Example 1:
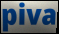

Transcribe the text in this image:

piva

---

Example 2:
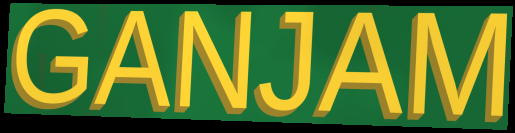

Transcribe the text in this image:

GANJAM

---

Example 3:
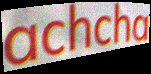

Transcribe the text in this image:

achcha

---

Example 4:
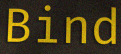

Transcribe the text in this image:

Bind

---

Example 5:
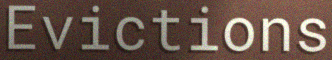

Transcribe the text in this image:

Evictions